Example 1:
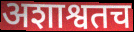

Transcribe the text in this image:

अशाश्वतच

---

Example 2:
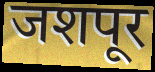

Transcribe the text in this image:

जशपूर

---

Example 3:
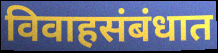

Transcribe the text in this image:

विवाहसंबंधात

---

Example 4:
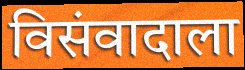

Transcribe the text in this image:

विसंवादाला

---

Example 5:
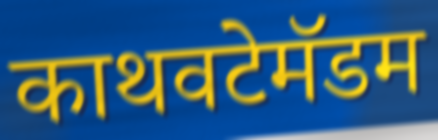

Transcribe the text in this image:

काथवटेमॅडम